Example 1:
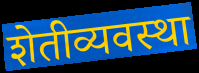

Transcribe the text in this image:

शेतीव्यवस्था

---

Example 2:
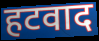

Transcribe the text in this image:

हटवाद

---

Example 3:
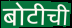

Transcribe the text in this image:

बोटीची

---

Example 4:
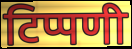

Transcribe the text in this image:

टिप्पणी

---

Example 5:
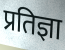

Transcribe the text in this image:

प्रतिज्ञा